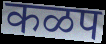
कळप